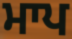
ਮਾਪ